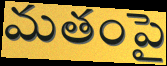
మతంపై